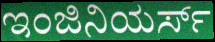
ಇಂಜಿನಿಯರ್ಸ್